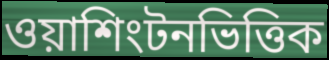
ওয়াশিংটনভিত্তিক